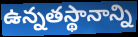
ఉన్నతస్థానాన్ని